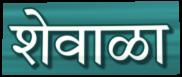
शेवाळा